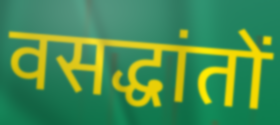
वसद्धांतों